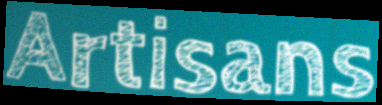
Artisans